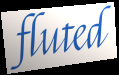
fluted